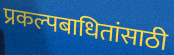
प्रकल्पबाधितांसाठी